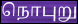
நொபுறு